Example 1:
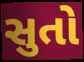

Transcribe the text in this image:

સુતો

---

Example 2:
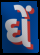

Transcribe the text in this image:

ઘેં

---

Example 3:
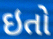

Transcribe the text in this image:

ઇતો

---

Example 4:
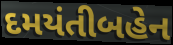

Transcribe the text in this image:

દમયંતીબહેન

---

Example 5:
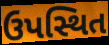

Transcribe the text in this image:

ઉપસ્થિત